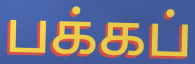
பக்கப்